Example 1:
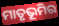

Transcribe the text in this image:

ମାତୃଭୂମିର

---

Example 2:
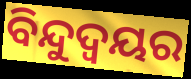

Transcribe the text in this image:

ବିନ୍ଦୁଦ୍ବୟର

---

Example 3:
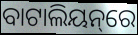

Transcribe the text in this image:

ବାଟାଲିୟନ୍‌ରେ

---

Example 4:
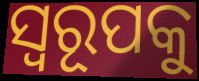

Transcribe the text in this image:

ସ୍ବରୂପକୁ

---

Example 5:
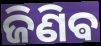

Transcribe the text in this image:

ଜିଣିଵ